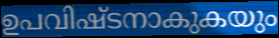
ഉപവിഷ്ടനാകുകയും